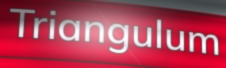
Triangulum